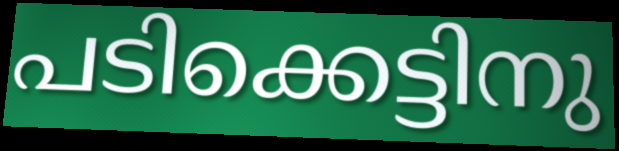
പടിക്കെട്ടിനു